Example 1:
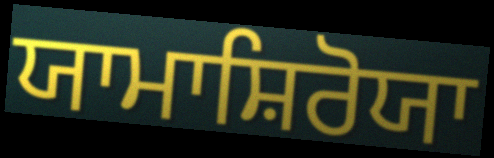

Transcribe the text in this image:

ਯਾਮਾਸ਼ਿਰੋਯਾ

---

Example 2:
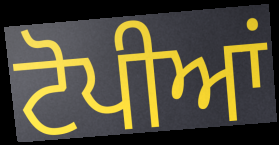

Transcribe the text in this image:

ਟੋਪੀਆਂ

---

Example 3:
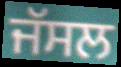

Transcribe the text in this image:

ਜੱਸਲ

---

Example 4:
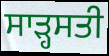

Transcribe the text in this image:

ਸਾੜ੍ਹਸਤੀ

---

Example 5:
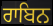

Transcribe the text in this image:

ਰਾਬਿਨ